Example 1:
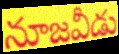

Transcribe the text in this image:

నూజవీడు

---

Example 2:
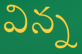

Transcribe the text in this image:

విన్న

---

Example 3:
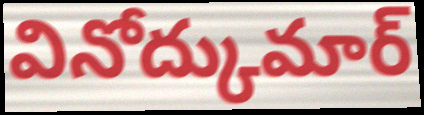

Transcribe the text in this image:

వినోద్కుమార్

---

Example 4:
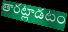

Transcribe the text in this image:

తారట్లాడటం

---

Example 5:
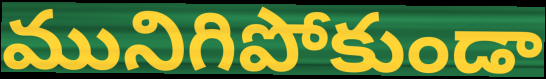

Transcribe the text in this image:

మునిగిపోకుండా